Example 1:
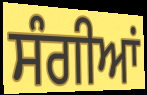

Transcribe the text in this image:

ਸੰਗੀਆਂ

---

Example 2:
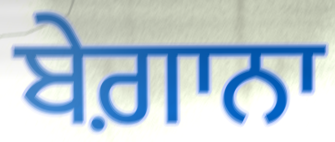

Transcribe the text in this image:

ਬੇਗ਼ਾਨਾ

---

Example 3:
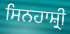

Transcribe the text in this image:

ਸਿਨਹਾਸ਼੍ਰੀ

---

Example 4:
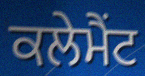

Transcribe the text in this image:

ਕਲੇਮੈਂਟ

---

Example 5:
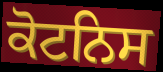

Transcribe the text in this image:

ਕੋਟਨਿਸ